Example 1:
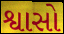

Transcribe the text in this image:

શ્વાસો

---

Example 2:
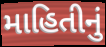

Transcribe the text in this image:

માહિતીનું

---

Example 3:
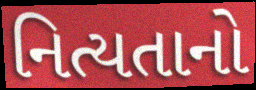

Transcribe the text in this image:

નિત્યતાનો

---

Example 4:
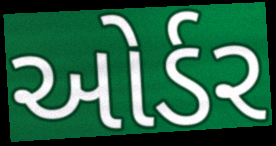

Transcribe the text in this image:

ઓર્ડર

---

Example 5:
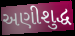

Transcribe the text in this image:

અણીશુદ્ધ